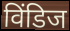
विंडिज